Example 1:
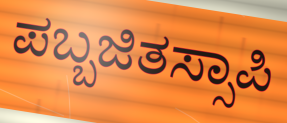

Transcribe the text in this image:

ಪಬ್ಬಜಿತಸ್ಸಾಪಿ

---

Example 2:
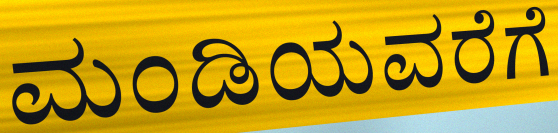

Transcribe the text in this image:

ಮಂಡಿಯವರೆಗೆ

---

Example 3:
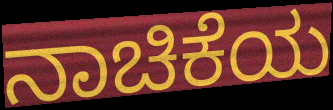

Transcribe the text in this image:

ನಾಚಿಕೆಯ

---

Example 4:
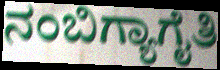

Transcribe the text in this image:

ನಂಬಿಗ್ಯಾಗೈತಿ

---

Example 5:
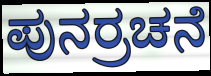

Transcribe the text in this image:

ಪುನರ್ರಚನೆ